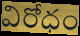
విరోధం